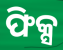
ଫିକ୍ସ